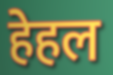
हेहल